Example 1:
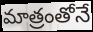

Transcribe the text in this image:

మాత్రంతోనే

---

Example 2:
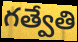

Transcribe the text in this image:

గత్వేతి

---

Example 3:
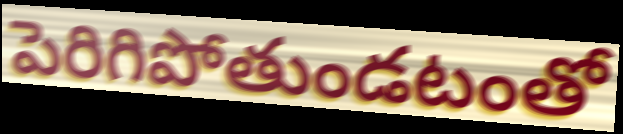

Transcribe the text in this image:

పెరిగిపోతుండటంతో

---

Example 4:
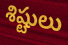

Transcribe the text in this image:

శిష్టులు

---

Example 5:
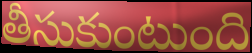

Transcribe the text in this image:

తీసుకుంటుంది